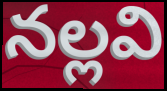
నల్లవి